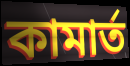
কামাৰ্ত